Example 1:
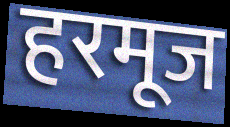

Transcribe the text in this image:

हरमूज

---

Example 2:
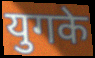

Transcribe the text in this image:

युगके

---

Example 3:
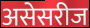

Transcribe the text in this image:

असेसरीज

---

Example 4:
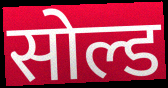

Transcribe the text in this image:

सोल्ड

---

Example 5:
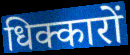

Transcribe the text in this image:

धिक्कारों